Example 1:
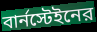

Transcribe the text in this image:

বার্নস্টেইনের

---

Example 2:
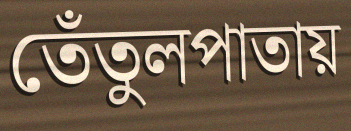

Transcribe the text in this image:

তেঁতুলপাতায়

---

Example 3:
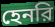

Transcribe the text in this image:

হেনরি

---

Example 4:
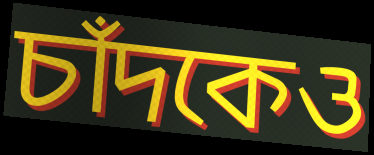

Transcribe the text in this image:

চাঁদকেও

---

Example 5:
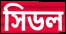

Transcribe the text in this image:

সিডল